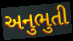
અનુભુતી